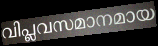
വിപ്ലവസമാനമായ